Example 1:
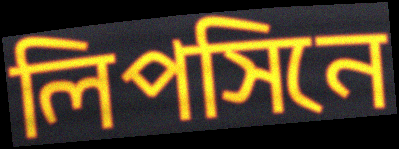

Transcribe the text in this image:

লিপসিনে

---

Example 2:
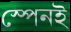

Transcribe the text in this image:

স্পেনই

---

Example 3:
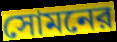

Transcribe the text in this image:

সোমনের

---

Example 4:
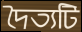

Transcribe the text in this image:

দৈত্যটি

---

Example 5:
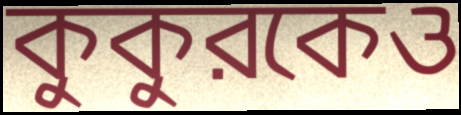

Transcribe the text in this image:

কুকুরকেও